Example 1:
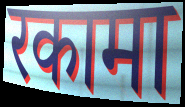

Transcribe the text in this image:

रकामा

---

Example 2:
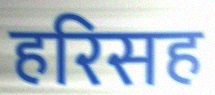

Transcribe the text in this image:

हरिसह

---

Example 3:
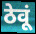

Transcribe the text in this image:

ठेवूं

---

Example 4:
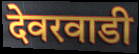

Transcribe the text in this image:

देवरवाडी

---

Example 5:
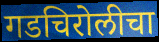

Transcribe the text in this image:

गडचिरोलीचा